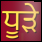
ਧੂੜੇ